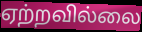
ஏற்றவில்லை